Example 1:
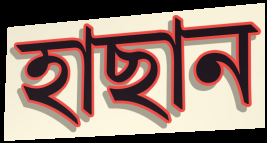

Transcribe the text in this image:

হাছান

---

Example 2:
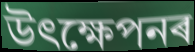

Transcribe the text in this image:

উৎক্ষেপনৰ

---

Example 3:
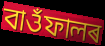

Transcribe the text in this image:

বাওঁফালৰ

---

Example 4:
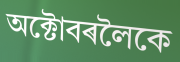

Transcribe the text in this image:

অক্টোবৰলৈকে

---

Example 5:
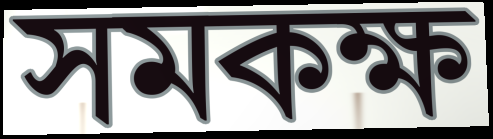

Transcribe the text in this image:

সমকক্ষ